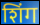
शिंग